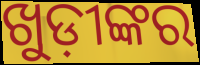
ଖୁଡ଼ୀଙ୍କର